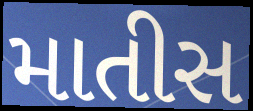
માતીસ